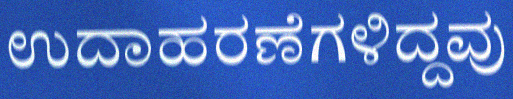
ಉದಾಹರಣೆಗಳಿದ್ದವು